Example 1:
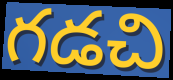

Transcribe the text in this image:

గడచి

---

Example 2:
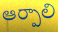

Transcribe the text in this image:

ఆర్పాలి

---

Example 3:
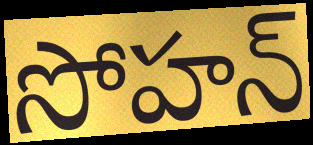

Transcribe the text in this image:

సోహన్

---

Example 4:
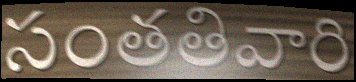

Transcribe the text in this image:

సంతతివారి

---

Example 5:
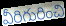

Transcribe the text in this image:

వీరిగురించి